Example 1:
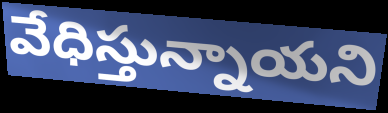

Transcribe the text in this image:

వేధిస్తున్నాయని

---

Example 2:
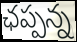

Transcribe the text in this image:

ఛప్పన్న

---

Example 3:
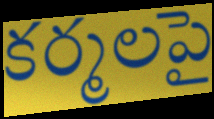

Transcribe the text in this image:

కర్మలపై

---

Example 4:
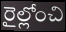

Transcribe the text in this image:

రైల్లోంచి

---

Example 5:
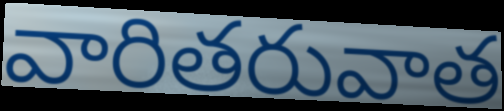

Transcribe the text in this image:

వారితరువాత